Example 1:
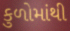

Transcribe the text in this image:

કુળોમાંથી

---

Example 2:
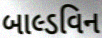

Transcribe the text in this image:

બાલ્ડવિન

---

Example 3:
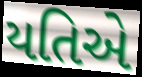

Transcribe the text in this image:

યતિએ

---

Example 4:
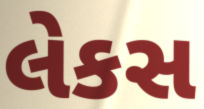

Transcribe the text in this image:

લેકસ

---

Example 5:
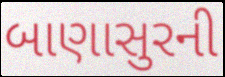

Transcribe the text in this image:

બાણાસુરની